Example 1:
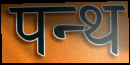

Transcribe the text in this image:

पन्थ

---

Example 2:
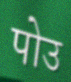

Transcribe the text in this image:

पोउ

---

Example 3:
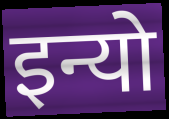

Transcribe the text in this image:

इन्यो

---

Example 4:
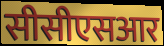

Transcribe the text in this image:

सीसीएसआर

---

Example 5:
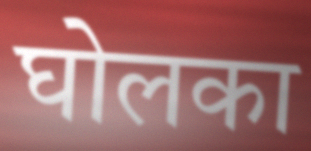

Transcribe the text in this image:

घोलका